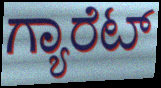
ಗ್ಯಾರೆಟ್